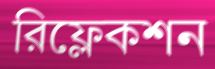
রিফ্লেকশন